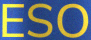
ESO